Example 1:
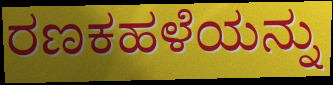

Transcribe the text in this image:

ರಣಕಹಳೆಯನ್ನು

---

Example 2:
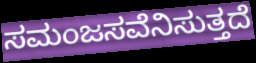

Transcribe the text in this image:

ಸಮಂಜಸವೆನಿಸುತ್ತದೆ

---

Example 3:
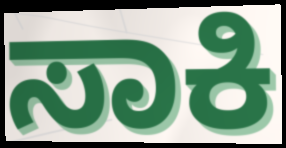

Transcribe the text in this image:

ಸಾಕಿ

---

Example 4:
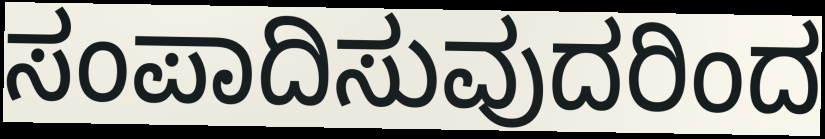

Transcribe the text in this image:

ಸಂಪಾದಿಸುವುದರಿಂದ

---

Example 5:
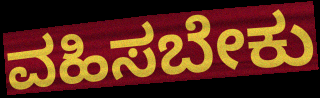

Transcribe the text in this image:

ವಹಿಸಬೇಕು